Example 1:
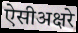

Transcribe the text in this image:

ऐसीअक्षरे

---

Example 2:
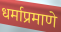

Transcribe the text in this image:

धर्माप्रमाणे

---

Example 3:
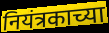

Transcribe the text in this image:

नियंत्रकाच्या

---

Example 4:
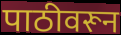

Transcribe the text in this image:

पाठीवरून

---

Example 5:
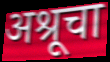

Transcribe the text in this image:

अश्रूचा